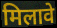
मिलावे